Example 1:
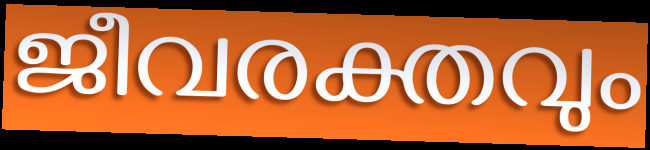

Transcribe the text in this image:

ജീവരക്തവും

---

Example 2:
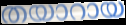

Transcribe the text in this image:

തയാറായ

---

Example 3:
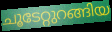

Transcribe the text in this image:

ചൂടേറ്റുറങ്ങിയ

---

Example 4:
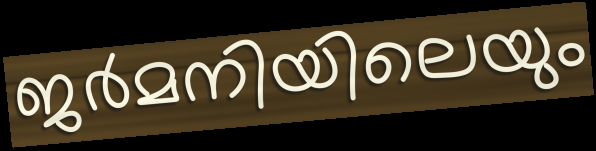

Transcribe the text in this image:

ജർമനിയിലെയും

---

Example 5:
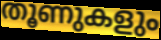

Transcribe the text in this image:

തൂണുകളും